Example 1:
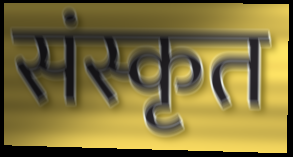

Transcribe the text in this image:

संस्कृत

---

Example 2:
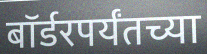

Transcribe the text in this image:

बॉर्डरपर्यंतच्या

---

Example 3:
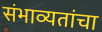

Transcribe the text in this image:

संभाव्यतांचा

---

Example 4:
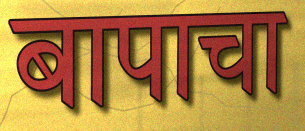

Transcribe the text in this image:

बापाचा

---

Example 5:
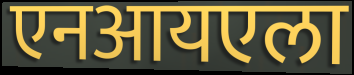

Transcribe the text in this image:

एनआयएला